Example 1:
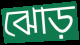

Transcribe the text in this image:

ঝোড়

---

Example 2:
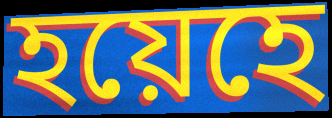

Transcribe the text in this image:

হয়েহে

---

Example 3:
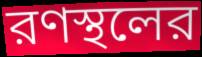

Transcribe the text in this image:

রণস্থলের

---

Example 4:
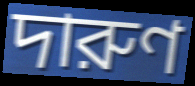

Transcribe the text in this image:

দারুণ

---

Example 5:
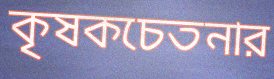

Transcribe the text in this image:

কৃষকচেতনার